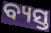
ବ୍ୟସ୍ତ